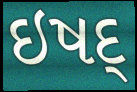
ઇષદ્